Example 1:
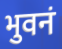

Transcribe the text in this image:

भुवनं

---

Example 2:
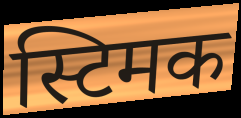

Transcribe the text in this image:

स्टिमक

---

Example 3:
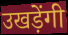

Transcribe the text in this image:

उखड़ेंगी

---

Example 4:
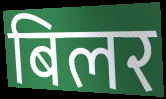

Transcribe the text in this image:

बिलर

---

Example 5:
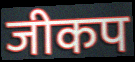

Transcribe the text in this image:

जीकप